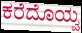
ಕರೆದೊಯ್ವ